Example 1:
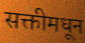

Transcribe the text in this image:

सक्तीमधून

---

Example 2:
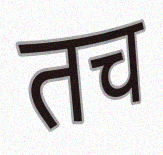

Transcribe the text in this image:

तच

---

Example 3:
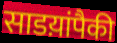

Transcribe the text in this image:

साडय़ांपैकी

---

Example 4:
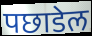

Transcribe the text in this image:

पछाडेल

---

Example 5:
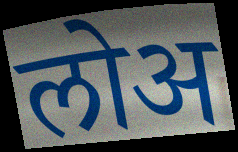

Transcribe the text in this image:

लोअ